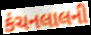
કંચનલાલની